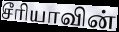
சீரியாவின்